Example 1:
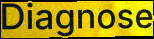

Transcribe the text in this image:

Diagnose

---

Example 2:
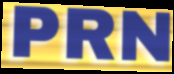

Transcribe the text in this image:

PRN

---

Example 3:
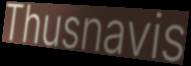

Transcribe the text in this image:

Thusnavis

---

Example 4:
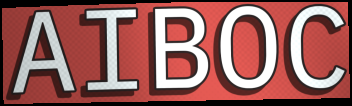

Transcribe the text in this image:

AIBOC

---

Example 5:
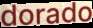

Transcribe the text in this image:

dorado